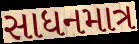
સાધનમાત્ર